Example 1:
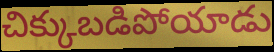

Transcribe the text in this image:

చిక్కుబడిపోయాడు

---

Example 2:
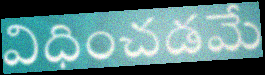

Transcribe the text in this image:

విధించడమే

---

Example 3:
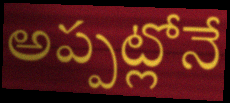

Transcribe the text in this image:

అప్పట్లోనే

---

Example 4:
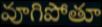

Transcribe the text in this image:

వూగిపోతూ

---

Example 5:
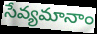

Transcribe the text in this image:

సేవ్యమానాం